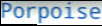
Porpoise